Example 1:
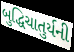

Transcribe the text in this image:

બુદ્ધિચાતુર્યની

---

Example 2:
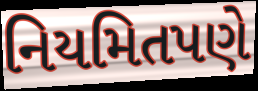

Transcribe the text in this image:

નિયમિતપણે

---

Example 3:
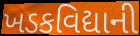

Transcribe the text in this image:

ખડકવિદ્યાની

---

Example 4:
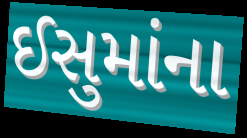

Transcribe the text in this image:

ઈસુમાંના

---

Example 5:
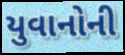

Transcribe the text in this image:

યુવાનોની